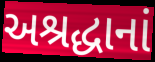
અશ્રદ્ધાનાં